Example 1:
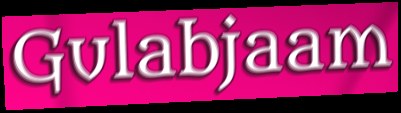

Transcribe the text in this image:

Gulabjaam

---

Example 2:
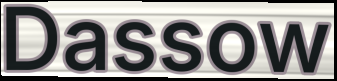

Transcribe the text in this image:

Dassow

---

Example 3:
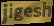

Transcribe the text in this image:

jigesh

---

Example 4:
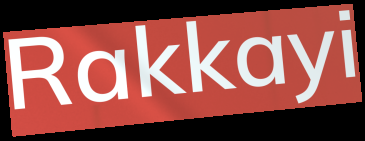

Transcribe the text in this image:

Rakkayi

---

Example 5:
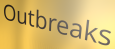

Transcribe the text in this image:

Outbreaks